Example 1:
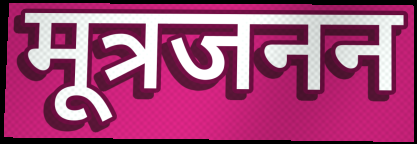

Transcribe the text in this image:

मूत्रजनन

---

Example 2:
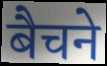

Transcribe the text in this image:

बैचने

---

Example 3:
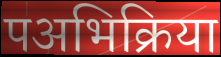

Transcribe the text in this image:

पअभिक्रिया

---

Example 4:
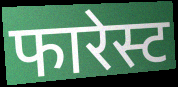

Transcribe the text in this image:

फारेस्ट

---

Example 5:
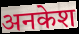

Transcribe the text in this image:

अनकेश